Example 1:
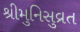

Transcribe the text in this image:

શ્રીમુનિસુવ્રત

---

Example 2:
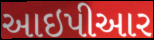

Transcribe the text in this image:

આઇપીઆર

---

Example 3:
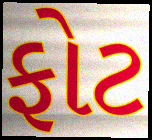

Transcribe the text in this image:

ફોટ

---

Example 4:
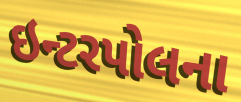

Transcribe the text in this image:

ઇન્ટરપોલના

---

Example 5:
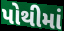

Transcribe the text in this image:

પોથીમાં